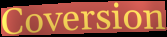
Coversion